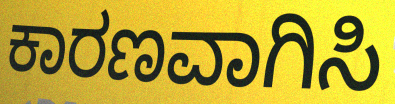
ಕಾರಣವಾಗಿಸಿ